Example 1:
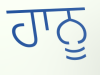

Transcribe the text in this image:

ਹਾਨੂ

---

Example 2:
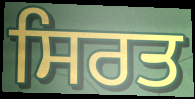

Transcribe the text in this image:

ਸਿਰਤ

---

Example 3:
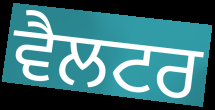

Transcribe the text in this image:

ਵੈਲਟਰ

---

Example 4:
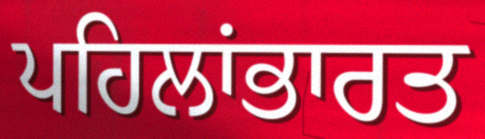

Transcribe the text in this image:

ਪਹਿਲਾਂਭਾਰਤ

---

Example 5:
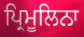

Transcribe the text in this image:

ਪ੍ਰਿਮੂਲਿਨਾ